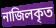
নাজিলকৃত